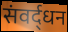
संवर्द्धन